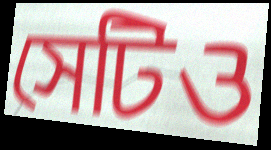
সেটিও